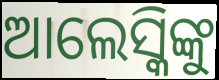
ଆଲେସ୍କିଙ୍କୁ